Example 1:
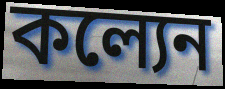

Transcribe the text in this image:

কল্যেন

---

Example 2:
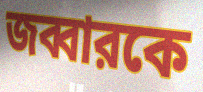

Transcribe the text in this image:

জব্বারকে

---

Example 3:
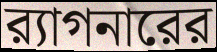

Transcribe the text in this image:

র‍্যাগনারের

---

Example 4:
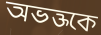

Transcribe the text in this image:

অভক্তকে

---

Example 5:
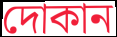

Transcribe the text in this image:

দোকান